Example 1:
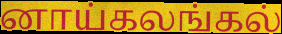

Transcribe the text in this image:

னாய்கலங்கல்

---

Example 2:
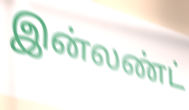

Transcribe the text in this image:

இன்லண்ட்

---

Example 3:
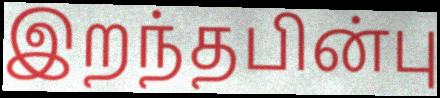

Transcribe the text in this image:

இறந்தபின்பு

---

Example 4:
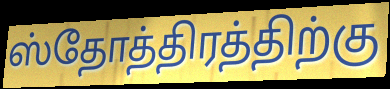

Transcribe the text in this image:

ஸ்தோத்திரத்திற்கு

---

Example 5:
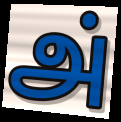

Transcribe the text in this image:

அ்